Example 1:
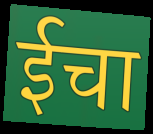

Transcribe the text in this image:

ईचा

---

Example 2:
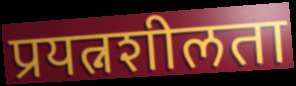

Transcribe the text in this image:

प्रयत्नशीलता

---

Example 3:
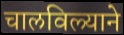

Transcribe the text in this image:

चालविल्याने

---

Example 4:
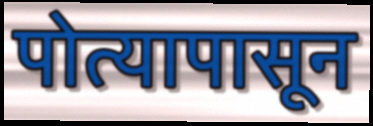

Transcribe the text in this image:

पोत्यापासून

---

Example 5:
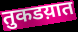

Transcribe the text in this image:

तुकडय़ात